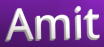
Amit